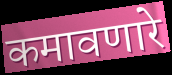
कमावणारे